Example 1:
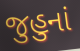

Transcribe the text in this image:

જુહુનાં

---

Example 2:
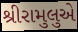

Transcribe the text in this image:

શ્રીરામુલુએ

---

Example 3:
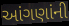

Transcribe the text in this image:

આંગણાંની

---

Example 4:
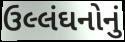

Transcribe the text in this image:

ઉલ્લંઘનોનું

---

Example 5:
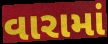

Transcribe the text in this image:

વારામાં